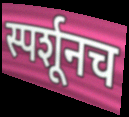
स्पर्शूनच